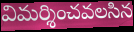
విమర్శించవలసిన